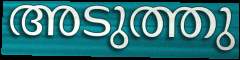
അടുത്തു